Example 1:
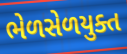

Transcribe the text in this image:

ભેળસેળયુક્ત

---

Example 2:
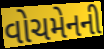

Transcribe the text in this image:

વોચમેનની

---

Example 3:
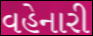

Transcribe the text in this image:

વહેનારી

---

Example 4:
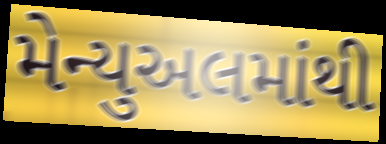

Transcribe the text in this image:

મેન્યુઅલમાંથી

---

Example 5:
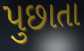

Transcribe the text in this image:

પુછાતા